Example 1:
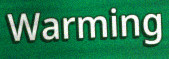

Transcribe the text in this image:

Warming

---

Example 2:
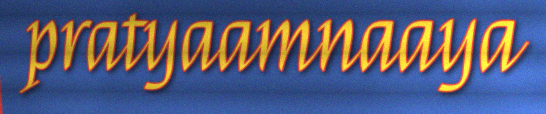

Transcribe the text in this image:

pratyaamnaaya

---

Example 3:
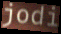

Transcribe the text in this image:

jodi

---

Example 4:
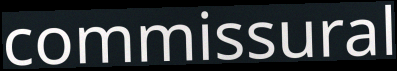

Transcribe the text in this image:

commissural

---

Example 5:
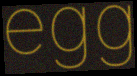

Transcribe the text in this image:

egg